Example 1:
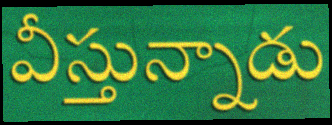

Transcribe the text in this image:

వీస్తున్నాడు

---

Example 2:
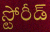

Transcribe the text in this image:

స్టోరీడ్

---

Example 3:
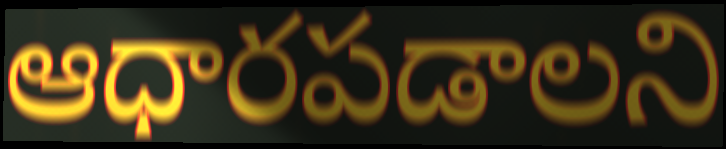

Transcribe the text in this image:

ఆధారపడాలని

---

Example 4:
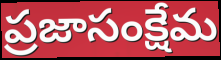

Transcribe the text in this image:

ప్రజాసంక్షేమ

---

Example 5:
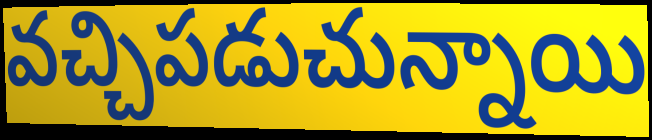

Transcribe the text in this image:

వచ్చిపడుచున్నాయి